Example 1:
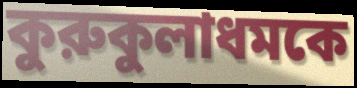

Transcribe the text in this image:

কুরুকুলাধমকে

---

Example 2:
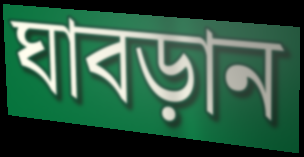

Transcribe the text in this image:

ঘাবড়ান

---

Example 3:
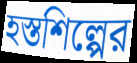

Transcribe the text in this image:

হস্তশিল্পের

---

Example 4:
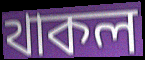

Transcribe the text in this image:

থাকল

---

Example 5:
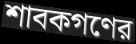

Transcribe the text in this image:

শাবকগণের